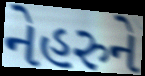
નેહરુને